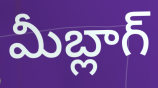
మీబ్లాగ్